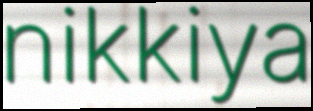
nikkiya